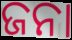
ଜନା